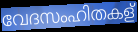
വേദസംഹിതകള്